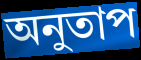
অনুতাপ